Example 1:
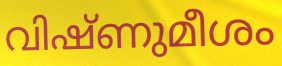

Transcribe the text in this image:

വിഷ്ണുമീശം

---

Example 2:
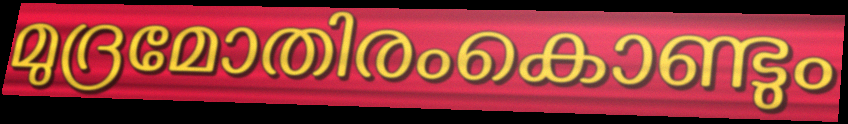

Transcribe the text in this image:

മുദ്രമോതിരംകൊണ്ടും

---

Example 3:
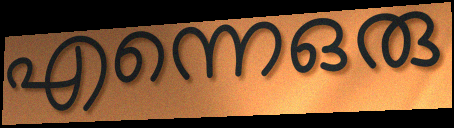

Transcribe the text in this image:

എന്നെഒരു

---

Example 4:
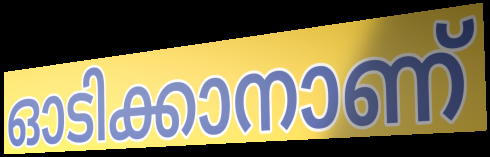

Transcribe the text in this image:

ഓടിക്കാനാണ്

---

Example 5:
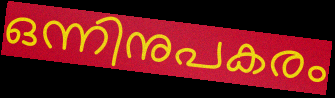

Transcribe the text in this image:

ഒന്നിനുപകരം